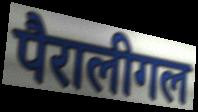
पैरालीगल